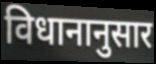
विधानानुसार